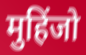
मुहिंजो